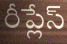
రీప్లేస్